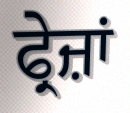
ਫ੍ਰੇਜ਼ਾਂ